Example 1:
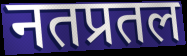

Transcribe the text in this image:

नतप्रतल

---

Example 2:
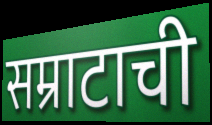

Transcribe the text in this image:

सम्राटाची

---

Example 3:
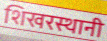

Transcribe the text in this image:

शिखरस्थानी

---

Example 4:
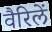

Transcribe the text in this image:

वैरिलें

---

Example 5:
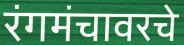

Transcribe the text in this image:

रंगमंचावरचे